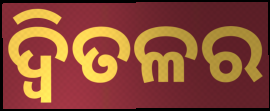
ଦ୍ୱିତଳର